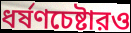
ধর্ষণচেষ্টারও